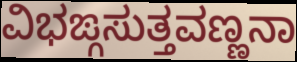
ವಿಭಙ್ಗಸುತ್ತವಣ್ಣನಾ